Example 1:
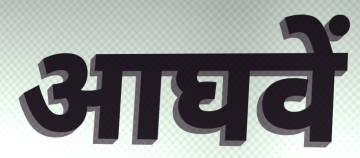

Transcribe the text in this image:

आघवें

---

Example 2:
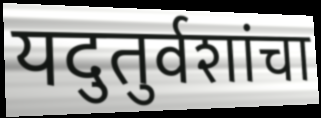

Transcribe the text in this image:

यदुतुर्वशांचा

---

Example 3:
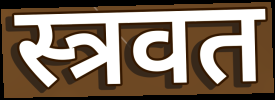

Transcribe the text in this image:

स्त्रवत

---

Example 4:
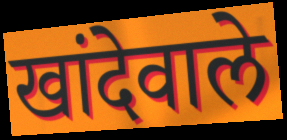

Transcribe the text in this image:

खांदेवाले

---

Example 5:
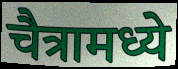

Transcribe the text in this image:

चैत्रामध्ये